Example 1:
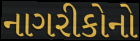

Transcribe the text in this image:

નાગરીકોનો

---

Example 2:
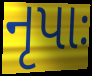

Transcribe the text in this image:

નૃપાઃ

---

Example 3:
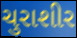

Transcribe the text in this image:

ચુરાશીર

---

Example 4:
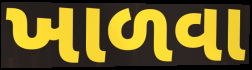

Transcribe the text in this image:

ખાળવા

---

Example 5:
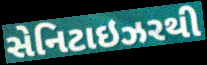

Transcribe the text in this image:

સેનિટાઇઝરથી